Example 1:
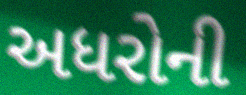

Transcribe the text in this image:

અધરોની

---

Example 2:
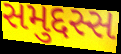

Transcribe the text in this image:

સમુદ્દસ્સ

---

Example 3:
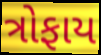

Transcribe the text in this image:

ત્રોફાય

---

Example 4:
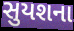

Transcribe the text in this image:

સુયશના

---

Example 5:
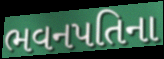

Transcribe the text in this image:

ભવનપતિના